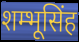
शम्भूसिंह